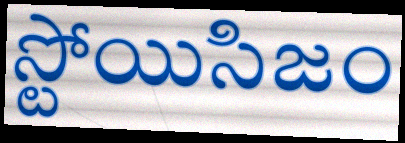
స్టోయిసిజం